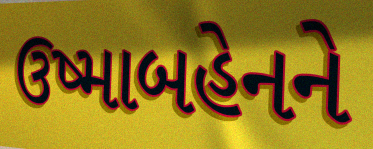
ઉષ્માબહેનને